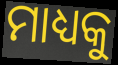
ମାଧ୍ୟକୁ